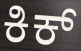
ಕಿಕ್